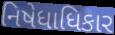
નિષેધાધિકાર